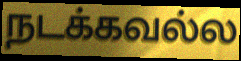
நடக்கவல்ல